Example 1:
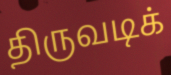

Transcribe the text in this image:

திருவடிக்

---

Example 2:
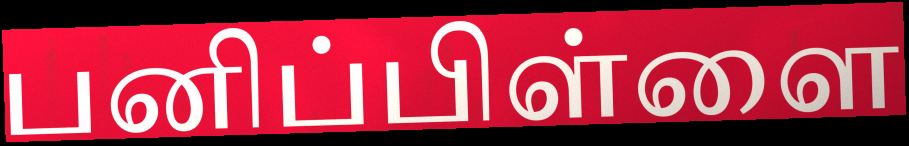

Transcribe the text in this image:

பனிப்பிள்ளை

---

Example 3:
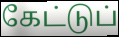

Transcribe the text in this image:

கேட்டுப்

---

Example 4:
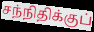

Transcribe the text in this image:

சந்நிதிக்குப்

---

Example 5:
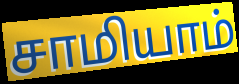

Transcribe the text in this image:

சாமியாம்